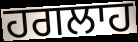
ਹਗਲਾਹ